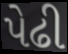
પેઢી